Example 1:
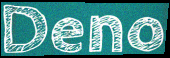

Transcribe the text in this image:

Deno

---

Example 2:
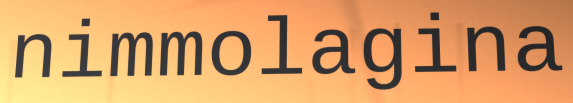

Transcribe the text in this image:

nimmolagina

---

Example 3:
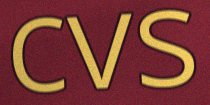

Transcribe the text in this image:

cvs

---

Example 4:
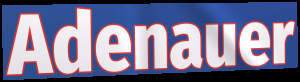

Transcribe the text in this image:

Adenauer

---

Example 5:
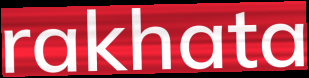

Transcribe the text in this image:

rakhata